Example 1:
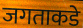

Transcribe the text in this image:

जगताकडे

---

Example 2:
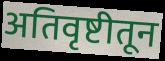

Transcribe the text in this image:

अतिवृष्टीतून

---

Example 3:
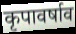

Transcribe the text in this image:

कृपावर्षाव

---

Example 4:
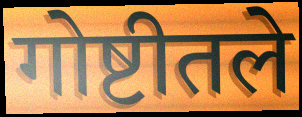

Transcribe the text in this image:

गोष्टीतले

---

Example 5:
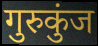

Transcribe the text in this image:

गुरुकुंज